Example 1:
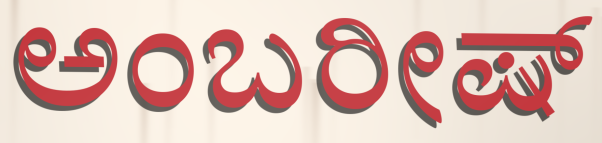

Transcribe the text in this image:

ಅಂಬರೀಷ್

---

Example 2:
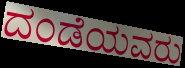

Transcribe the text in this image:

ದಂಡೆಯವರು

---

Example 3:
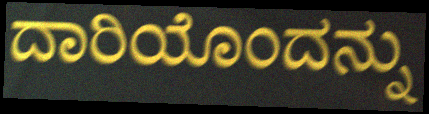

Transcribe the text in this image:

ದಾರಿಯೊಂದನ್ನು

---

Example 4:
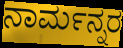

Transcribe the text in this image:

ನಾರ್ಮನ್ನರ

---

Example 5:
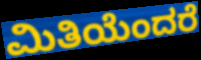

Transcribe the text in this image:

ಮಿತಿಯೆಂದರೆ